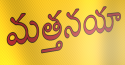
మత్తనయా